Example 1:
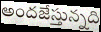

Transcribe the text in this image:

అందజేస్తున్నది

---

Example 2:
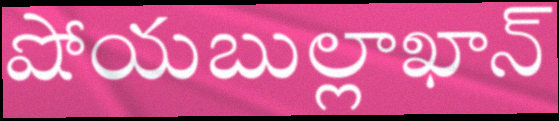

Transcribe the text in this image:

షోయబుల్లాఖాన్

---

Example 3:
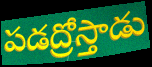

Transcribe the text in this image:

పడద్రోస్తాడు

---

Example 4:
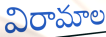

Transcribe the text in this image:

విరామాల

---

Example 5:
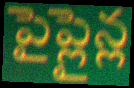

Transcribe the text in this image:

పైప్లైన్ల